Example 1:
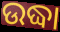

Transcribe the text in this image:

ଉଦ୍ଧା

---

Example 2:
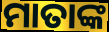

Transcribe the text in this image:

ମାତାଙ୍କ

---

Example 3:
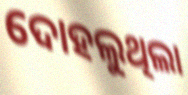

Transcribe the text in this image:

ଦୋହଲୁଥିଲା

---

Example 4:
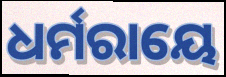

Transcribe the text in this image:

ଧର୍ମରାୟେ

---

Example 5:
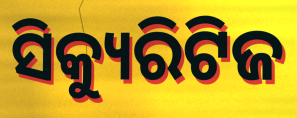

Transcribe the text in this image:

ସିକ୍ୟୁରିଟିଜ